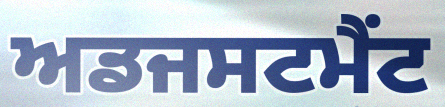
ਅਡਜਸਟਮੈਂਟ